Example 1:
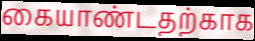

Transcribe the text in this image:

கையாண்டதற்காக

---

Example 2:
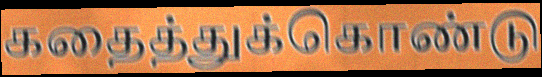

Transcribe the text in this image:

கதைத்துக்கொண்டு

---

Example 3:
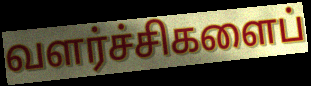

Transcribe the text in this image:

வளர்ச்சிகளைப்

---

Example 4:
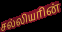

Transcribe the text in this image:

சல்லியரின்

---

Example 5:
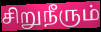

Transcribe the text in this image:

சிறுநீரும்